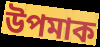
উপমাক